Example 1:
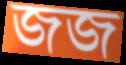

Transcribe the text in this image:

জজ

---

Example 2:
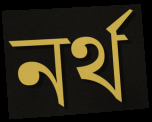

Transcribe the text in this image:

নর্থ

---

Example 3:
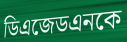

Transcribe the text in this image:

ডিএজেডএনকে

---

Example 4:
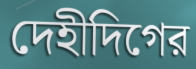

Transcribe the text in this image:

দেহীদিগের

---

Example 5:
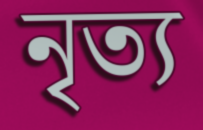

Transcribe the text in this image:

নৃত্য